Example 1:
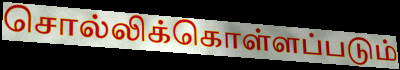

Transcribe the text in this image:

சொல்லிக்கொள்ளப்படும்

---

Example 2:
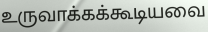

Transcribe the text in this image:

உருவாக்கக்கூடியவை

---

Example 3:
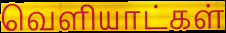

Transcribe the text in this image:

வெளியாட்கள்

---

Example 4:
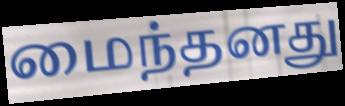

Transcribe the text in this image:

மைந்தனது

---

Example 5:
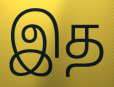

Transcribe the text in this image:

இத